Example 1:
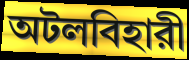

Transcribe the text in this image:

অটলবিহারী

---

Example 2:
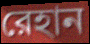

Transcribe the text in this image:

রেহান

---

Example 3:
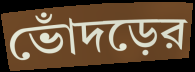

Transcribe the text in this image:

ভোঁদড়ের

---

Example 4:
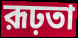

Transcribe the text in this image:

রূঢ়তা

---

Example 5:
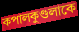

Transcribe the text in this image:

কপালকুণ্ডলাকে